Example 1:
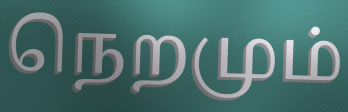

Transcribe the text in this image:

நெறமும்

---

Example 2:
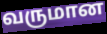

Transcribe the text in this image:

வருமான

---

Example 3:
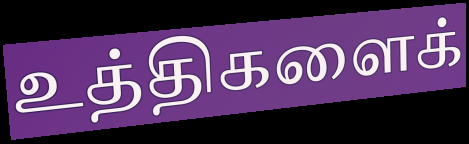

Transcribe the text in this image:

உத்திகளைக்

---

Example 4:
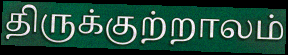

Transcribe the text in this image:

திருக்குற்றாலம்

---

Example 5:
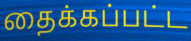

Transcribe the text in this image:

தைக்கப்பட்ட